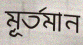
মূৰ্তমান